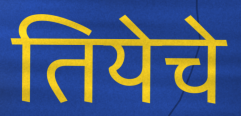
तियेचे